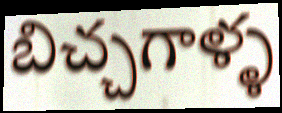
బిచ్చగాళ్ళ